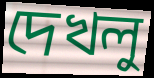
দেখলু